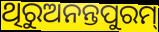
ଥିରୁଅନନ୍ତପୁରମ୍